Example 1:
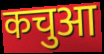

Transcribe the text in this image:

कचुआ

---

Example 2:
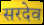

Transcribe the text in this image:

सरदेव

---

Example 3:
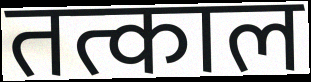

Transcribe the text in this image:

तत्‍काल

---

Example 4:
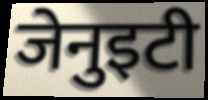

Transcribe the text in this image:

जेनुइटी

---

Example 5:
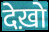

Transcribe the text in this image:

देख़ो